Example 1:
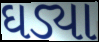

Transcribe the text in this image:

ઘડ્યા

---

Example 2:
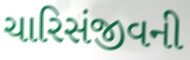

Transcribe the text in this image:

ચારિસંજીવની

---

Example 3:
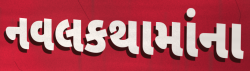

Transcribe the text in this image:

નવલકથામાંના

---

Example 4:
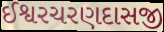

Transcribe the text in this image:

ઈશ્વરચરણદાસજી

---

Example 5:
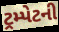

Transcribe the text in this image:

ટ્રમ્પેટની